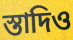
স্তাদিও